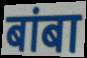
बांबा